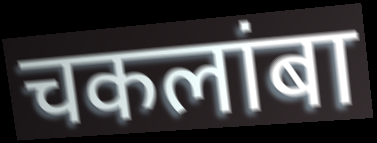
चकलांबा